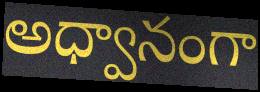
అధ్వానంగా